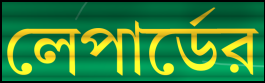
লেপার্ডের